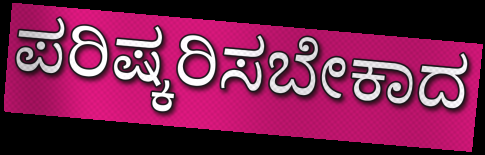
ಪರಿಷ್ಕರಿಸಬೇಕಾದ